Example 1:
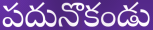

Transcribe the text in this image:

పదునొకండు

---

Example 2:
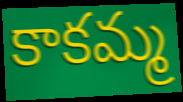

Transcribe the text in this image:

కాకమ్మ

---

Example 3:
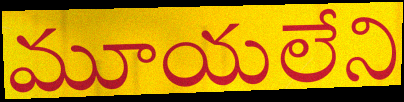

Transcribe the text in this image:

మూయలేని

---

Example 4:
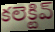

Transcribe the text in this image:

కలెక్టివ్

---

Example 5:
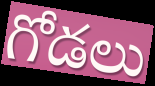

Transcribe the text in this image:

గోడలు